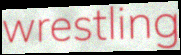
wrestling